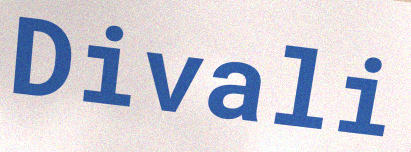
Divali